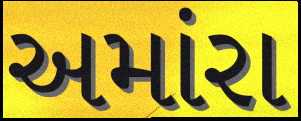
અમાંરા